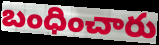
బంధించారు